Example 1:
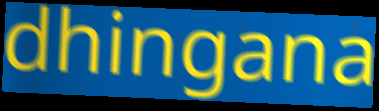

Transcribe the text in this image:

dhingana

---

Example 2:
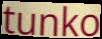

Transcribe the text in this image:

tunko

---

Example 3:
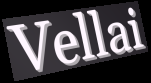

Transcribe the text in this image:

Vellai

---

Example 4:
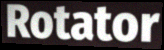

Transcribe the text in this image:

Rotator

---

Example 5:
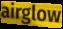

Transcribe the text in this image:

airglow